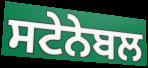
ਸਟੇਨੇਬਲ